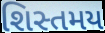
શિસ્તમય